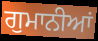
ਗੁਮਾਨੀਆਂ